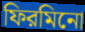
ফিরমিনো